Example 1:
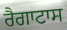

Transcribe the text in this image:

ਰੈਗਾਟਾਸ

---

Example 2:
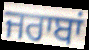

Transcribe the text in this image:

ਜਰਾਬਾਂ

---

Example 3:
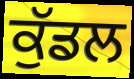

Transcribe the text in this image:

ਕੁੱਡਲ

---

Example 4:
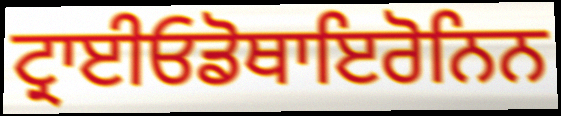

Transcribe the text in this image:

ਟ੍ਰਾਈਓਡੋਥਾਇਰੋਨਿਨ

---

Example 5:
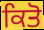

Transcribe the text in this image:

ਕਿਤੋ